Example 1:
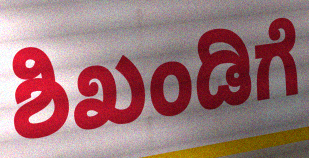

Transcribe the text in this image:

ಶಿಖಂಡಿಗೆ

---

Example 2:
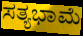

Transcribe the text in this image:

ಸತ್ಯಭಾಮೆ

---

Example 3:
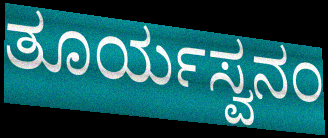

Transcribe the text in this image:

ತೂರ್ಯಸ್ವನಂ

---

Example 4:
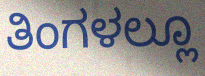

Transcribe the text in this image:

ತಿಂಗಳಲ್ಲೂ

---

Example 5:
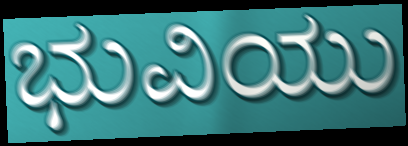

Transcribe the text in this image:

ಭುವಿಯು